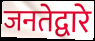
जनतेद्वारे